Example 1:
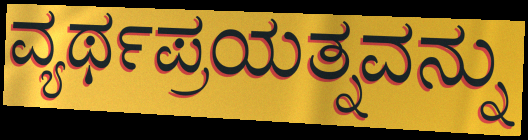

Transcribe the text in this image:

ವ್ಯರ್ಥಪ್ರಯತ್ನವನ್ನು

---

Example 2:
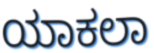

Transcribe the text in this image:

ಯಾಕಲಾ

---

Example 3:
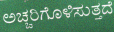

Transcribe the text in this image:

ಅಚ್ಚರಿಗೊಳಿಸುತ್ತದೆ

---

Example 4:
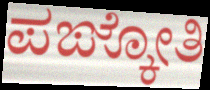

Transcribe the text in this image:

ಪಙ್ಕೋತಿ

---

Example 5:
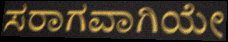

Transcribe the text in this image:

ಸರಾಗವಾಗಿಯೇ